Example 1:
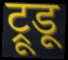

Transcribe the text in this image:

ट्रूडू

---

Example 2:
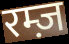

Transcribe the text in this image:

रम्ज़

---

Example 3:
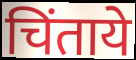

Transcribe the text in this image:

चिंताये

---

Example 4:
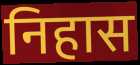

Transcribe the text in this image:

निहास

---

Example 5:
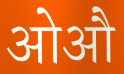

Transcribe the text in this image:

ओऔ